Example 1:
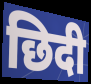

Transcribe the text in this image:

छिदी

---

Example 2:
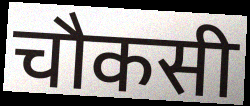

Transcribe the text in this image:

चौकसी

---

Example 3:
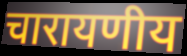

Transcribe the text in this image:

चारायणीय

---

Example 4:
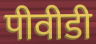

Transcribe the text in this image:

पीवीडी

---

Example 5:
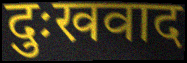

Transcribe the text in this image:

दुःखवाद